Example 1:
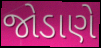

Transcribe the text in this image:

જોડાણે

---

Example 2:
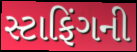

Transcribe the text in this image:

સ્ટાફિંગની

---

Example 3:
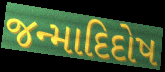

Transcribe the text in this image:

જન્માદિદોષ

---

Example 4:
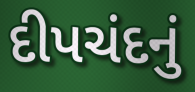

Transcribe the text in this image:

દીપચંદનું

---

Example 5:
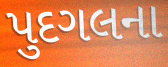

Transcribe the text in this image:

પુદગલના